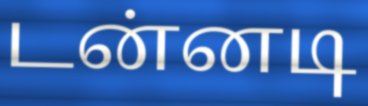
டன்னடி